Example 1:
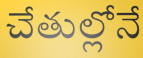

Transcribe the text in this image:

చేతుల్లోనే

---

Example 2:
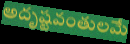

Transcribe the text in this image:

అదృష్టవంతులమే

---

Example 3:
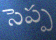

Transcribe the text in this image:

సెప్ప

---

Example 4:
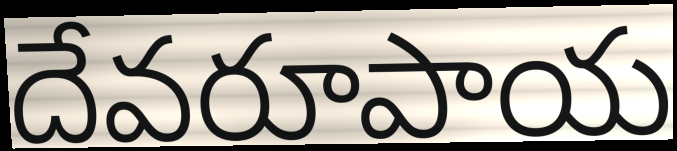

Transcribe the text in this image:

దేవరూపాయ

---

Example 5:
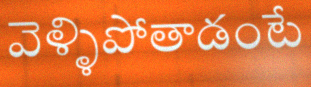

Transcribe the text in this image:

వెళ్ళిపోతాడంటే